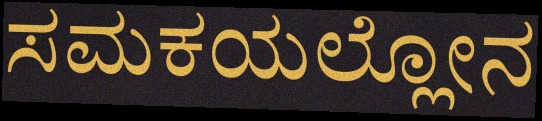
ಸಮಕಯಲ್ಲೋನ